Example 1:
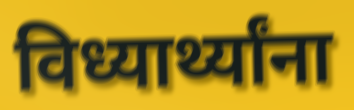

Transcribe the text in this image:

विध्यार्थ्यांना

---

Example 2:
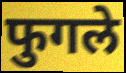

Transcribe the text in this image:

फुगले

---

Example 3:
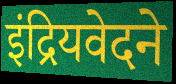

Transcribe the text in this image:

इंद्रियवेदने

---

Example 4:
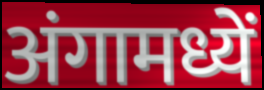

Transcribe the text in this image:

अंगामध्यें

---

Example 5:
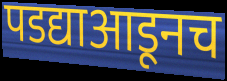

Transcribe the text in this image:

पडद्याआडूनच